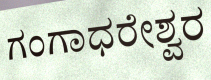
ಗಂಗಾಧರೇಶ್ವರ